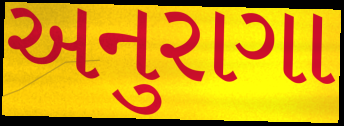
અનુરાગા